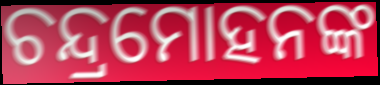
ଚନ୍ଦ୍ରମୋହନଙ୍କ